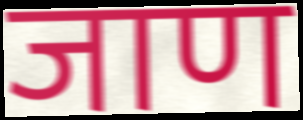
जाण